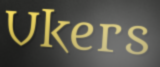
Ukers